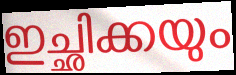
ഇച്ഛിക്കയും